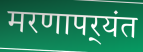
मरणापर्यंत